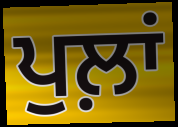
ਪੁਲ਼ਾਂ